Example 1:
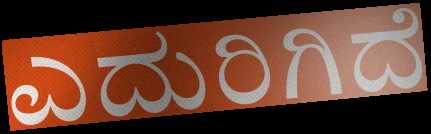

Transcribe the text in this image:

ಎದುರಿಗಿದೆ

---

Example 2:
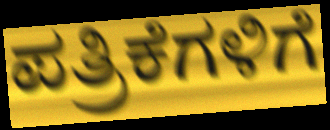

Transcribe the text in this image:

ಪತ್ರಿಕೆಗಳಿಗೆ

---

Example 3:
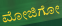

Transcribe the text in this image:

ಮೋಜಿಗೋ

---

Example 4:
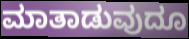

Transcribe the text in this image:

ಮಾತಾಡುವುದೂ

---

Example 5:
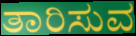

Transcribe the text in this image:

ತಾರಿಸುವ